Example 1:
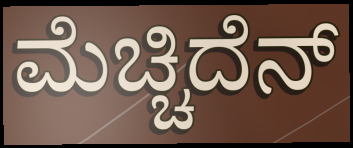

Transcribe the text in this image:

ಮೆಚ್ಚಿದೆನ್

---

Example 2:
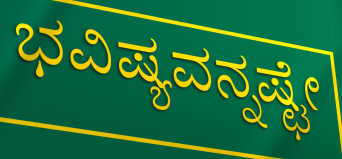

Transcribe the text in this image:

ಭವಿಷ್ಯವನ್ನಷ್ಟೇ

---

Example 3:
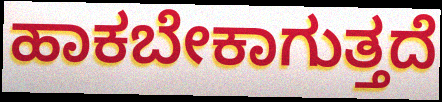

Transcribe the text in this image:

ಹಾಕಬೇಕಾಗುತ್ತದೆ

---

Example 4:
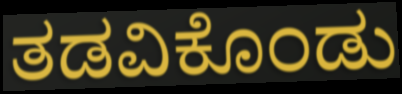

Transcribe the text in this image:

ತಡವಿಕೊಂಡು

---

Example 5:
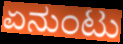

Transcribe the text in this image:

ಏನುಂಟು